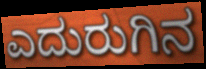
ಎದುರುಗಿನ